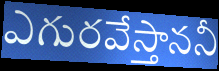
ఎగురవేస్తాననీ